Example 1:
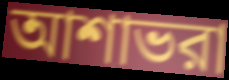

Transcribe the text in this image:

আশাভরা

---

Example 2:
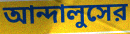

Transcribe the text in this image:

আন্দালুসের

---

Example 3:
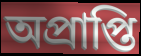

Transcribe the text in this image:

অপ্রাপ্তি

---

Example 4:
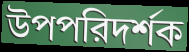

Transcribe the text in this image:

উপপরিদর্শক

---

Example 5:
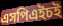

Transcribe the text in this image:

এসপিএইচই